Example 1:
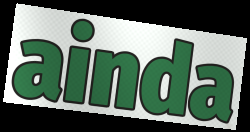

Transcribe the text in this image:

ainda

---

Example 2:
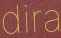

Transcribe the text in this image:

dira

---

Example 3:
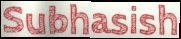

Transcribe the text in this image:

Subhasish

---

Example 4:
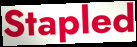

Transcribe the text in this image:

Stapled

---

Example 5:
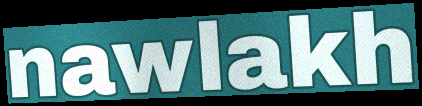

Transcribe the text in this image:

nawlakh